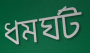
ধমর্ঘট